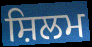
ਸ਼ਿਲਮ